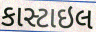
કાસ્ટાઇલ